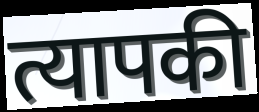
त्यापकी